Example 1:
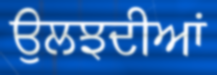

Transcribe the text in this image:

ਉਲਝਦੀਆਂ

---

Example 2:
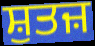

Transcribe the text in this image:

ਸ਼ੁਤਜ਼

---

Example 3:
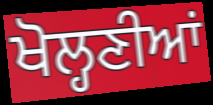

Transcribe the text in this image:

ਖੋਲ੍ਹਣੀਆਂ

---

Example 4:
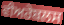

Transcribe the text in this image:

ਵੀਅਰੇਬਲਸ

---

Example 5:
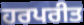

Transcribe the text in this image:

ਹਰਪਰੀਤ